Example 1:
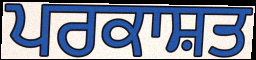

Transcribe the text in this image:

ਪਰਕਾਸ਼ਤ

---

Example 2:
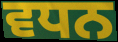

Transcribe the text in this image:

ਵਧਨ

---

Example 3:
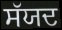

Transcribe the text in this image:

ਸੱਯਦ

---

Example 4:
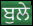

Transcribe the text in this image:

ਬੁਲੇ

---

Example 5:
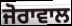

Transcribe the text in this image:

ਜੋਰਾਵਾਲ